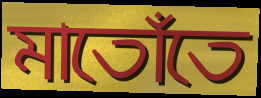
মাতোঁতে